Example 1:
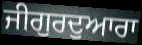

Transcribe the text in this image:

ਜੀਗੁਰਦੁਆਰਾ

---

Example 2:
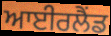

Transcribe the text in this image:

ਆਈਰਲੈਂਡ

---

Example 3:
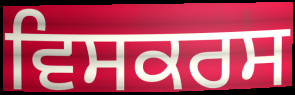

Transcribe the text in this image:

ਵਿਸਕਰਸ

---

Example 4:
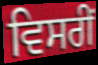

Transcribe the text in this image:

ਵਿਸਰੀਂ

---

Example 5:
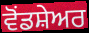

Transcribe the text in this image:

ਵੋਂਡਸ਼ੇਅਰ